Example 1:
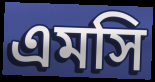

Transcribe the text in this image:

এমসি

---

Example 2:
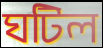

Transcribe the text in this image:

ঘটিল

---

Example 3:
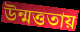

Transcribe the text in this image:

উন্মত্ততায়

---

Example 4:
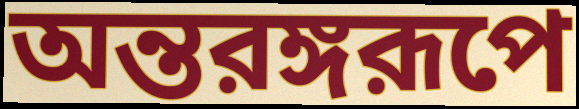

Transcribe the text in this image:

অন্তরঙ্গরূপে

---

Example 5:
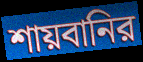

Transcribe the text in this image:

শায়বানির